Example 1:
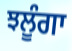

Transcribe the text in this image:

ਝਲੂੰਗਾ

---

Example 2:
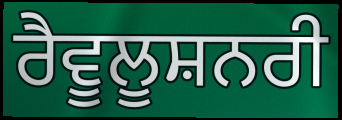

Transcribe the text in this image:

ਰੈਵੂਲੂਸ਼ਨਰੀ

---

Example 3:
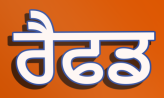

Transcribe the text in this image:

ਰੈਫਡ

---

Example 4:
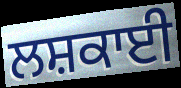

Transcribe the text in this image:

ਲਸ਼ਕਾਈ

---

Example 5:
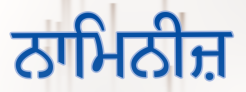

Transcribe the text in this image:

ਨਾਮਿਨੀਜ਼